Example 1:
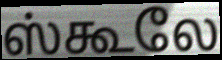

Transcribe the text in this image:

ஸ்கூலே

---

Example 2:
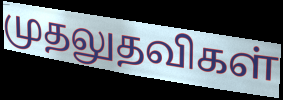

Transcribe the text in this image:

முதலுதவிகள்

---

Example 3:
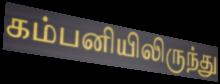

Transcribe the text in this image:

கம்பனியிலிருந்து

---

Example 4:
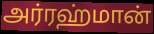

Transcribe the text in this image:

அர்ரஹ்மான்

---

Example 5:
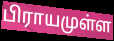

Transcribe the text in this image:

பிராயமுள்ள